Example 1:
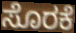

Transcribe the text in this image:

ಸೊರಕೆ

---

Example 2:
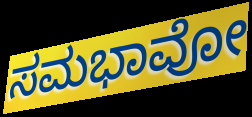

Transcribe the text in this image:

ಸಮಭಾವೋ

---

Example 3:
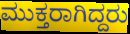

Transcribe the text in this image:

ಮುಕ್ತರಾಗಿದ್ದರು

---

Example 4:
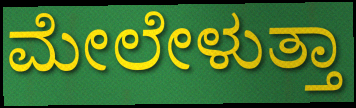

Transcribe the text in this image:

ಮೇಲೇಳುತ್ತಾ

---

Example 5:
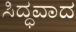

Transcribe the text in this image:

ಸಿದ್ಧವಾದ